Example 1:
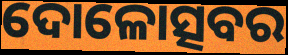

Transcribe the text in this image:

ଦୋଳୋତ୍ସବର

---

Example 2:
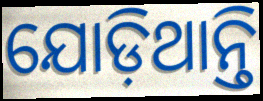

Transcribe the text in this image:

ଯୋଡ଼ିଥାନ୍ତି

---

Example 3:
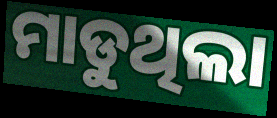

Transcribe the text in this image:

ମାଡୁଥିଲା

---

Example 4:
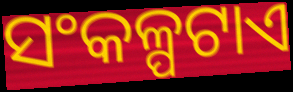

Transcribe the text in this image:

ସଂକଳ୍ପଟାଏ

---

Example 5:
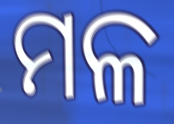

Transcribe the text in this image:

ମଳ